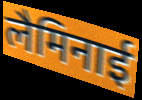
लैमिनाई